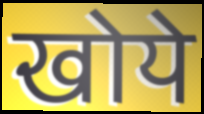
खोये